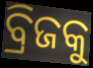
ବ୍ରିଜକୁ